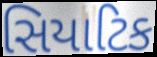
સિયાટિક